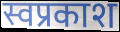
स्वप्रकाश